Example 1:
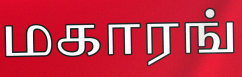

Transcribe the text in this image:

மகாரங்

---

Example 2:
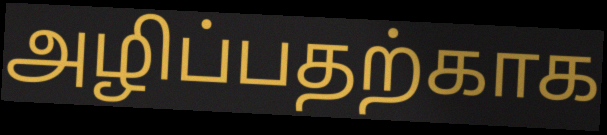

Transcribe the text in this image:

அழிப்பதற்காக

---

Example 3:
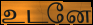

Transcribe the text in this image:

உடனே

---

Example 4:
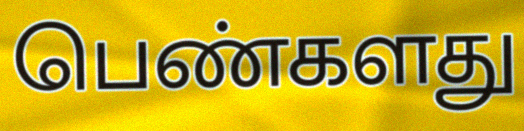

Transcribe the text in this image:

பெண்களது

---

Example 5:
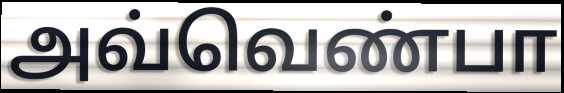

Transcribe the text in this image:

அவ்வெண்பா